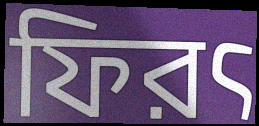
ফিরৎ